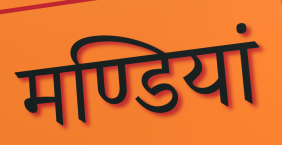
मण्डियां